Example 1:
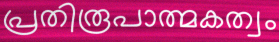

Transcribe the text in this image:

പ്രതിരൂപാത്മകത്വം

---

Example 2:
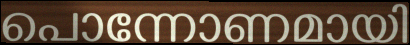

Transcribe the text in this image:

പൊന്നോണമായി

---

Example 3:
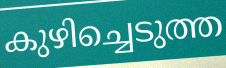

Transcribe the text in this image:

കുഴിച്ചെടുത്ത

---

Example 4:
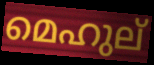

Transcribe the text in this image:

മെഹുല്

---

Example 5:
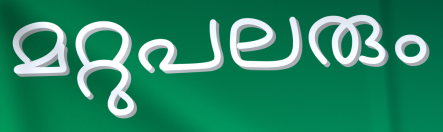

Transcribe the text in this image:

മറ്റുപലരും